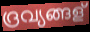
ദ്രവ്യങ്ങള്